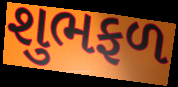
શુભફળ